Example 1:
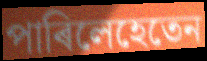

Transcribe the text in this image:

পাৰিলেহেতেন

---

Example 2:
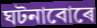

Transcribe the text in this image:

ঘটনাবোৰে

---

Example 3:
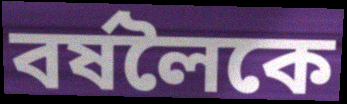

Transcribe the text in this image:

বৰ্ষলৈকে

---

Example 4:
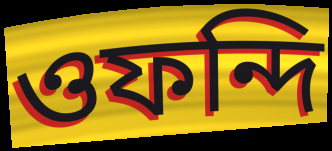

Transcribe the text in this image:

ওফন্দি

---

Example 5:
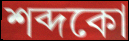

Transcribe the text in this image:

শব্দকো